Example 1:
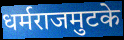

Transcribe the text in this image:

धर्मराजमुटके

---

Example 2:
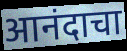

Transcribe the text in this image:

आनंदाचा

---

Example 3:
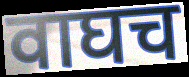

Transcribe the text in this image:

वाघच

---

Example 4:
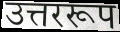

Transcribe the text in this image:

उत्तररूप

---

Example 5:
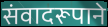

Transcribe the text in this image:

संवादरूपाने